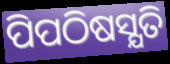
ପିପଠିଷସ୍ଯତି